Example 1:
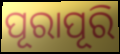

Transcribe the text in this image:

ପୂରାପୂରି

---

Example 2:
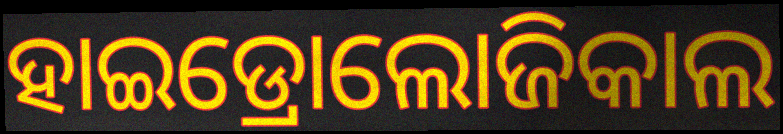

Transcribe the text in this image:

ହାଇଡ୍ରୋଲୋଜିକାଲ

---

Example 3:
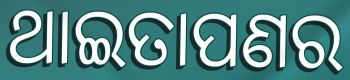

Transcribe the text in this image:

ଥାଇତାପଣର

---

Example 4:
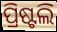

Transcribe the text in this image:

ପ୍ରିଷ୍ଟଲି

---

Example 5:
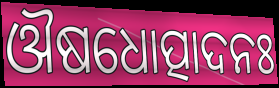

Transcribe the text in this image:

ଔଷଧୋତ୍ପାଦନଃ